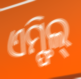
ଏମ୍ଫିଲ୍